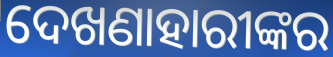
ଦେଖଣାହାରୀଙ୍କର